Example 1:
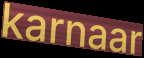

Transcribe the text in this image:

karnaar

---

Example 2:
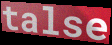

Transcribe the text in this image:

talse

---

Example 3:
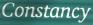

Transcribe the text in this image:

Constancy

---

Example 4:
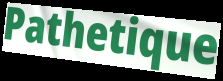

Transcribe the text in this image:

Pathetique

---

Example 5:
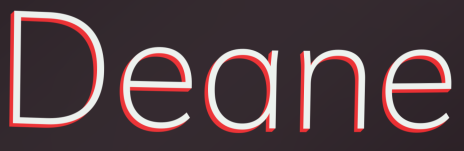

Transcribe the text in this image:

Deane